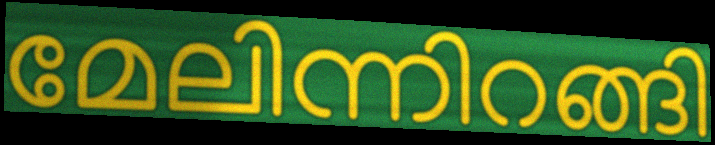
മേലിന്നിറങ്ങി